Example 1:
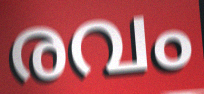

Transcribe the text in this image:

രവം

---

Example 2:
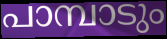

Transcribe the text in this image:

പാമ്പാടും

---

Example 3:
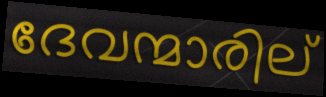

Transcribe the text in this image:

ദേവന്മാരില്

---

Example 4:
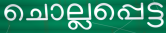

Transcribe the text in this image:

ചൊല്ലപ്പെട്ട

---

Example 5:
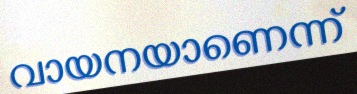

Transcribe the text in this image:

വായനയാണെന്ന്